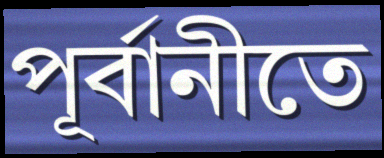
পূর্বানীতে